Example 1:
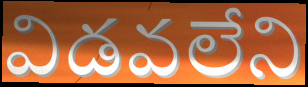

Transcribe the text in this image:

విడవలేని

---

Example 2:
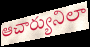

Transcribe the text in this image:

ఆచార్యునిలా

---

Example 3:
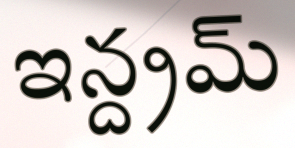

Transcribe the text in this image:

ఇన్ద్రమ్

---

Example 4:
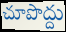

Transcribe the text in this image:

చూపొద్దు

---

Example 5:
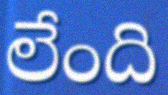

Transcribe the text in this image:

లేంది